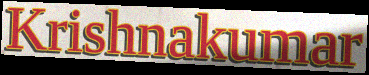
Krishnakumar